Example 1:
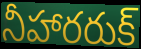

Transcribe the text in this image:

నీహారరుక్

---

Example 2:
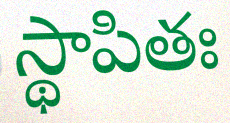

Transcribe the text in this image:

స్థాపితః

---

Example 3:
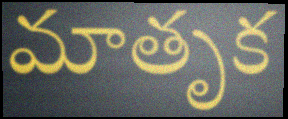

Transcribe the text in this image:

మాతృక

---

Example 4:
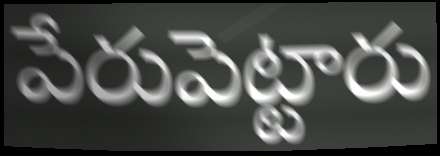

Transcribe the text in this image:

పేరుపెట్టారు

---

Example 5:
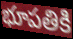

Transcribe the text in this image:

భూపతికి